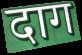
दाग